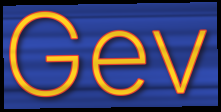
Gev